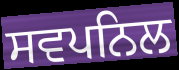
ਸਵਪਨਿਲ